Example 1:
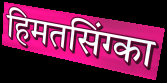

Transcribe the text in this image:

हिमतसिंग्का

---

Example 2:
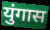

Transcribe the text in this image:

युंगास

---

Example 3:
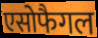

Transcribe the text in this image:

एसोफैगल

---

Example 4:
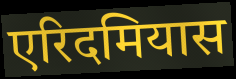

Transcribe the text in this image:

एरिदमियास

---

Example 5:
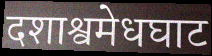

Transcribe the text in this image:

दशाश्वमेधघाट